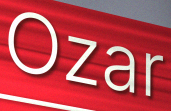
Ozar